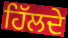
ਹਿੱਲਦੇ